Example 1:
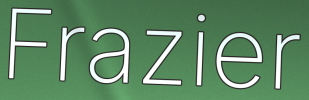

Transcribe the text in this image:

Frazier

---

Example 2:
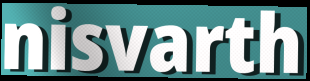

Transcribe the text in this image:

nisvarth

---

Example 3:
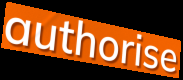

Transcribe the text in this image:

authorise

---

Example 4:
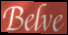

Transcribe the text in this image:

Belve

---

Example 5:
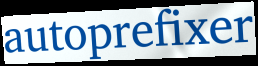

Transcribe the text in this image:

autoprefixer